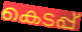
കെടപ്പ്